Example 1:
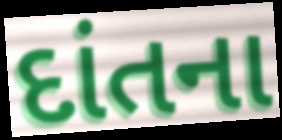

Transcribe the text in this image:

દાંતના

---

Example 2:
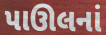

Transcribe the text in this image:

પાઊલનાં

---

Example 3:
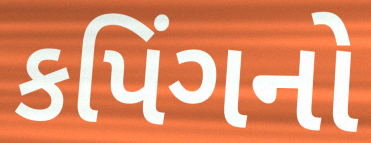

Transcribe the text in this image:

કપિંગનો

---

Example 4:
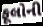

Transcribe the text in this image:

ફૂલોની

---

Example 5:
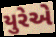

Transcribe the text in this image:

યુરેએ